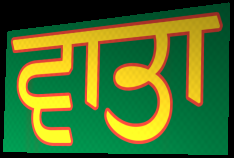
ਵਾਤਾ